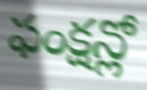
ఫంక్షన్లో